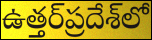
ఉత్తర్‌ప్రదేశ్‌లో